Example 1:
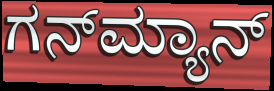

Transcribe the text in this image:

ಗನ್‌ಮ್ಯಾನ್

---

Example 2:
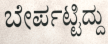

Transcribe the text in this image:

ಬೇರ್ಪಟ್ಟಿದ್ದು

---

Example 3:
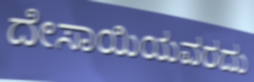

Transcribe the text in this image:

ದೇಸಾಯಿಯವರದು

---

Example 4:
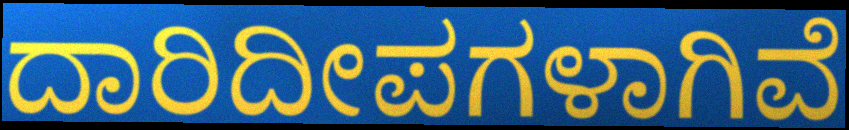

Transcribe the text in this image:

ದಾರಿದೀಪಗಳಾಗಿವೆ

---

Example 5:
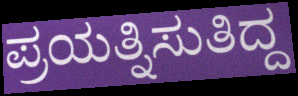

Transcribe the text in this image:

ಪ್ರಯತ್ನಿಸುತಿದ್ದ